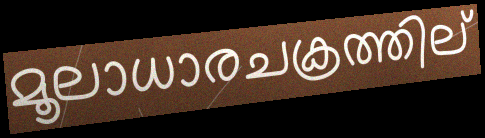
മൂലാധാരചക്രത്തില്